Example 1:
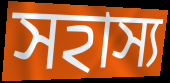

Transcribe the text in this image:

সহাস্য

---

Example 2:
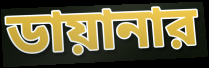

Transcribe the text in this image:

ডায়ানার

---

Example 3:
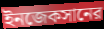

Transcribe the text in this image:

ইনজেকসানের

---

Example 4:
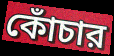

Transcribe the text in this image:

কোঁচার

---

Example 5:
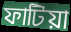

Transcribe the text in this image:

ফাটিয়া